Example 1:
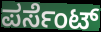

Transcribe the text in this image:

ಪರ್ಸೆಂಟ್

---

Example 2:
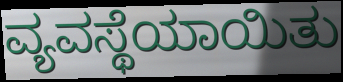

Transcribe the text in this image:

ವ್ಯವಸ್ಥೆಯಾಯಿತು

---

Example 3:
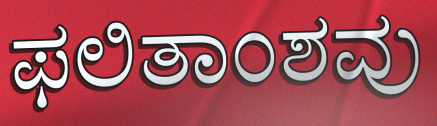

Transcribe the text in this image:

ಫಲಿತಾಂಶವು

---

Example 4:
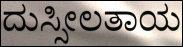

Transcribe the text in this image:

ದುಸ್ಸೀಲತಾಯ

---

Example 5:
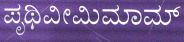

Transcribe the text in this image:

ಪೃಥಿವೀಮಿಮಾಮ್